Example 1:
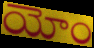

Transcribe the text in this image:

యోం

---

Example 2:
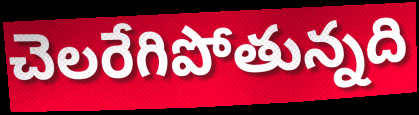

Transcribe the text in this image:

చెలరేగిపోతున్నది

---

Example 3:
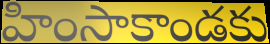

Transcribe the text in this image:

హింసాకాండకు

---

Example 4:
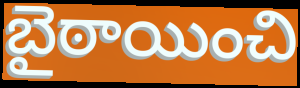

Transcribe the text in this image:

బైఠాయించి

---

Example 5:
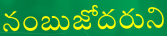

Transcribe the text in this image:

నంబుజోదరుని